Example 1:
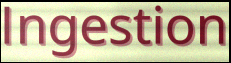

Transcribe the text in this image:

Ingestion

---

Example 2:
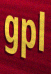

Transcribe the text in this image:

gpl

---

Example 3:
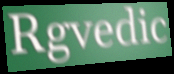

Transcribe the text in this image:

Rgvedic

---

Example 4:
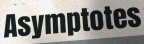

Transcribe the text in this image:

Asymptotes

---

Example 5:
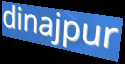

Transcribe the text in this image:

dinajpur